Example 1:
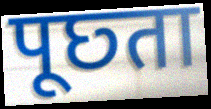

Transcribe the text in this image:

पूछ्ता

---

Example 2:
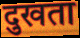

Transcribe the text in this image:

दुखता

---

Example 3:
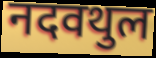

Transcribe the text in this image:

नदवथुल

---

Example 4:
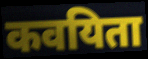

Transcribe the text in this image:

कवयिता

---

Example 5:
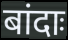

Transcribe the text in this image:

बांदाः